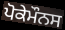
ਪੋਕੇਮੌਨਸ